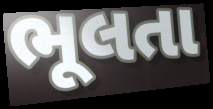
ભૂલતા